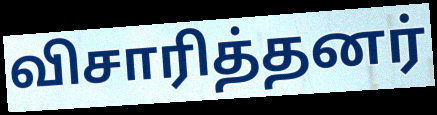
விசாரித்தனர்